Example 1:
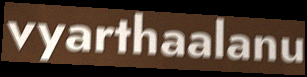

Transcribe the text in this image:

vyarthaalanu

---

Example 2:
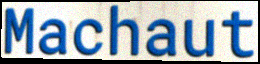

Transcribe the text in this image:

Machaut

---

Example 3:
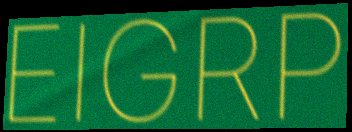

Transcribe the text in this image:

EIGRP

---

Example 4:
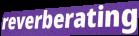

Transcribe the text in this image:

reverberating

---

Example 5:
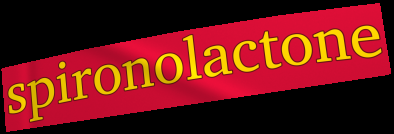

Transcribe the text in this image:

spironolactone